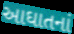
આઘાતનાં